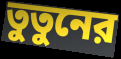
তুতুনের